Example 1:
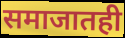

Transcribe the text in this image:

समाजातही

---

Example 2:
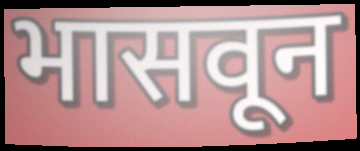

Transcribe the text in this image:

भासवून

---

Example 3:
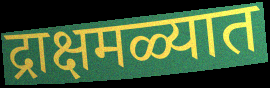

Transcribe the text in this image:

द्राक्षमळ्यात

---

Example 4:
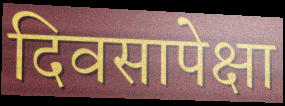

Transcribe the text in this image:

दिवसापेक्षा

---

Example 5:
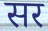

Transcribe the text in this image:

सर